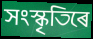
সংস্কৃতিৰে